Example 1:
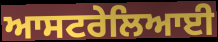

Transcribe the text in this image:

ਆਸਟਰੇਲਿਆਈ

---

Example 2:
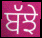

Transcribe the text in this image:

ਬੱਝੇ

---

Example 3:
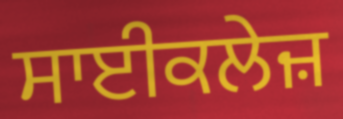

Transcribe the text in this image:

ਸਾਈਕਲੇਜ਼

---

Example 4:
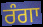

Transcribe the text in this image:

ਰੰਗਾ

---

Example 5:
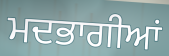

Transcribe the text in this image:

ਮਦਭਾਗੀਆਂ